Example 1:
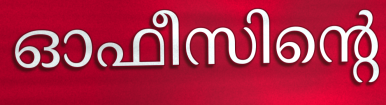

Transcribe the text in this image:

ഓഫീസിന്റെ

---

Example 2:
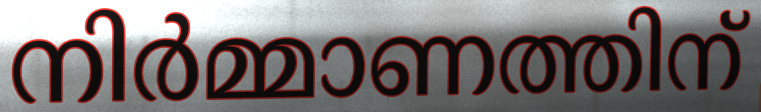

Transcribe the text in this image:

നിർമ്മാണത്തിന്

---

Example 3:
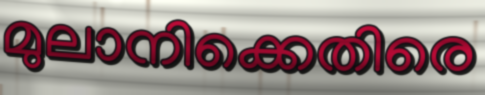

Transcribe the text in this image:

മുലാനിക്കെതിരെ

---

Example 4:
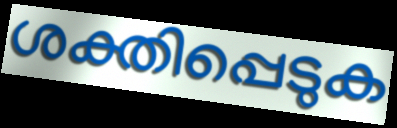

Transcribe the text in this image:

ശക്തിപ്പെടുക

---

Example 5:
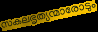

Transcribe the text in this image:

സകലഭൃത്യന്മാരോടും